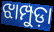
ଝାମ୍ପୁଡ଼ା